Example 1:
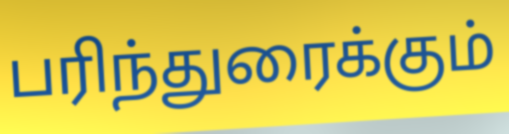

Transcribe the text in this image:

பரிந்துரைக்கும்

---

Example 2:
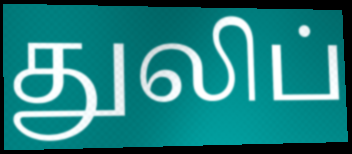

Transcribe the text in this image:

துலிப்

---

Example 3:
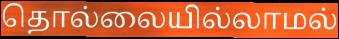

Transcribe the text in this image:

தொல்லையில்லாமல்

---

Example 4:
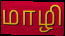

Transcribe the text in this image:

மாழி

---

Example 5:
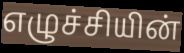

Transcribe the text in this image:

எழுச்சியின்